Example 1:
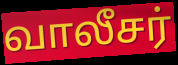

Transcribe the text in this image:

வாலீசர்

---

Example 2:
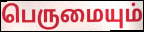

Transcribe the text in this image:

பெருமையும்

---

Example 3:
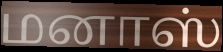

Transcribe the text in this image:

மனாஸ்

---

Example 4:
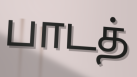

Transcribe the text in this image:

பாடத்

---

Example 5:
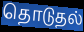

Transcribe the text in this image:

தொடுதல்